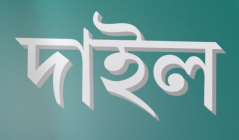
দাইল